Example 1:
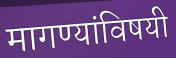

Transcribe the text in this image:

मागण्यांविषयी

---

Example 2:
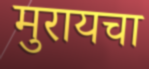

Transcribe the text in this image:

मुरायचा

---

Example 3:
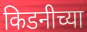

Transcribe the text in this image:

किडनीच्या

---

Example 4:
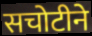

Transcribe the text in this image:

सचोटीने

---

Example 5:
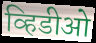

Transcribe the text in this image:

व्हिडीओ